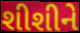
શીશીને